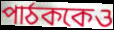
পাঠককেও